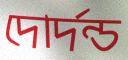
দোর্দন্ড